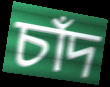
চাঁদ